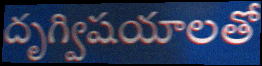
దృగ్విషయాలతో